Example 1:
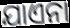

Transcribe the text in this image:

ଯାଏନା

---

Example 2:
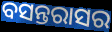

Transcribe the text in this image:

ବସନ୍ତରାସର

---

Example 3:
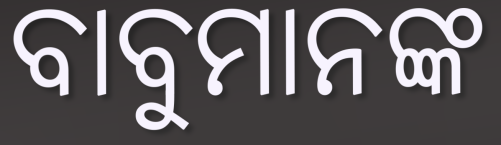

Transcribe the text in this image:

ବାବୁମାନଙ୍କ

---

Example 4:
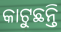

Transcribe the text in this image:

କାଟୁଛନ୍ତି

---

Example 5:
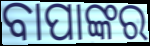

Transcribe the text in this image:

ବାପାଙ୍କର